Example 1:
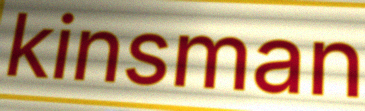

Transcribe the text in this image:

kinsman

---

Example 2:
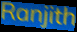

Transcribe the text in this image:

Ranjith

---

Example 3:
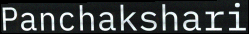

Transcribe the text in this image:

Panchakshari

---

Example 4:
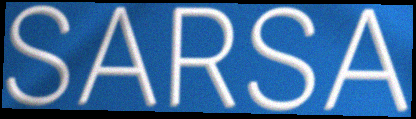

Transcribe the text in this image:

SARSA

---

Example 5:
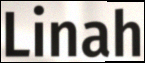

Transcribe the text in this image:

Linah